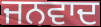
ਜਨਵਾਦ